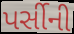
પર્સીની